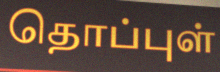
தொப்புள்